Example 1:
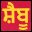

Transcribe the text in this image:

ਸ਼ੈਬੂ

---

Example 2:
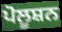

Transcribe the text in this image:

ਪੋਲੂਸ਼ਨ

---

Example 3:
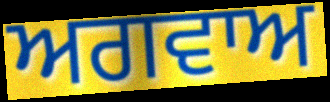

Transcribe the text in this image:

ਅਗਵਾਅ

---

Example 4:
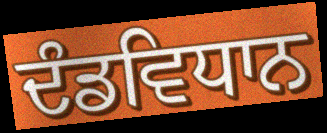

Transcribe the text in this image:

ਦੰਡਵਿਧਾਨ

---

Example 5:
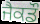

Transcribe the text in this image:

ਜੈਕਡੌ